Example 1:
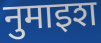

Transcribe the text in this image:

नुमाइश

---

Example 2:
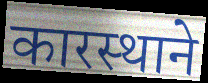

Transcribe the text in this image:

कारस्थाने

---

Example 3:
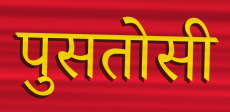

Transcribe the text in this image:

पुसतोसी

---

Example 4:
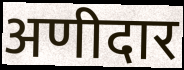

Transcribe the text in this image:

अणीदार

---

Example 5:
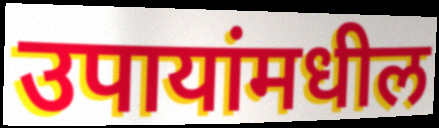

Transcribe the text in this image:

उपायांमधील